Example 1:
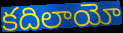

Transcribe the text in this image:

కదిలాయో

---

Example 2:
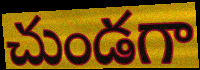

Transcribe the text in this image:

చుండగా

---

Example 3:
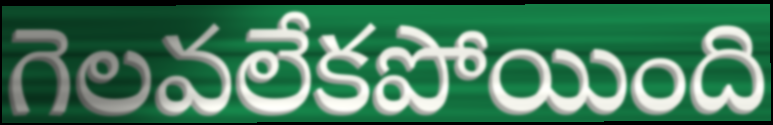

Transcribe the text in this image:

గెలవలేకపోయింది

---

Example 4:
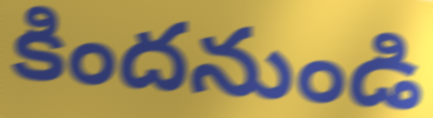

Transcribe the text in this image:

కిందనుండి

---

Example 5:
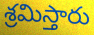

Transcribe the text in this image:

శ్రమిస్తారు